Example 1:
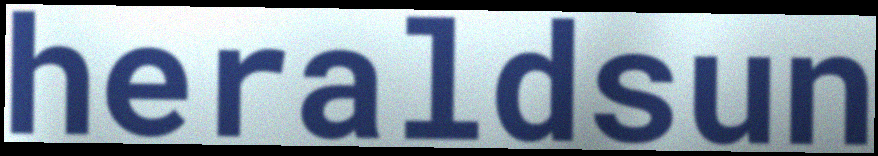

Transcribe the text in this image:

heraldsun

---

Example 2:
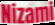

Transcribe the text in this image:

Nizami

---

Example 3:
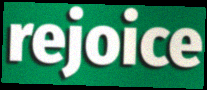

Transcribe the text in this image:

rejoice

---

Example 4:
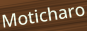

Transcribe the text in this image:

Moticharo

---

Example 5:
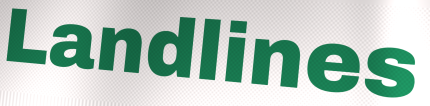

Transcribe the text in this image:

Landlines